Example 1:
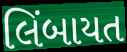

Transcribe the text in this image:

લિંબાયત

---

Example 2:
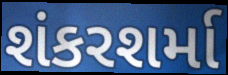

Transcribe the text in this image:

શંકરશર્મા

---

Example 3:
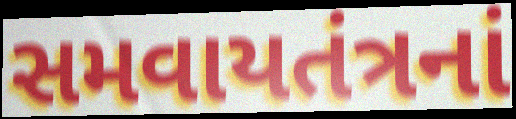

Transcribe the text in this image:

સમવાયતંત્રનાં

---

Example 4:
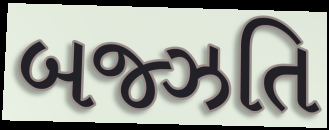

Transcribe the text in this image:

બજ્ઝતિ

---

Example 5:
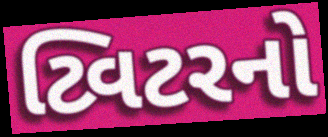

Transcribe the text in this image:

ટ્વિટરનો